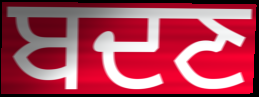
ਬਦਣ